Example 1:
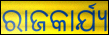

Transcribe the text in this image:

ରାଜକାର୍ଯ୍ୟ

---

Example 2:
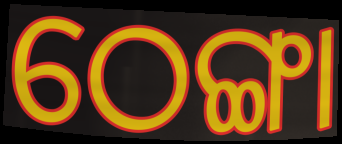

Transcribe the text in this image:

ଠେଙ୍ଗା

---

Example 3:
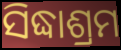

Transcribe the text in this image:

ସିଦ୍ଧାଶ୍ରମ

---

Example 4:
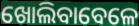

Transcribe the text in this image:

ଖୋଲିବାବେଳେ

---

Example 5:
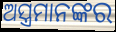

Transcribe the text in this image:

ଅସ୍ତ୍ରମାନଙ୍କର